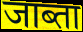
जाब्ता